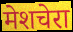
मेशचेरा